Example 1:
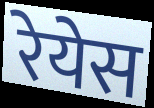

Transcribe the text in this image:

रेयेस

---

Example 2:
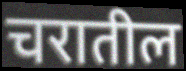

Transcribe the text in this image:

चरातील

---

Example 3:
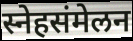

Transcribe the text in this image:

स्नेहसंमेलन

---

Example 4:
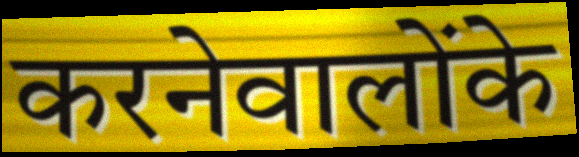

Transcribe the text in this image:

करनेवालोंके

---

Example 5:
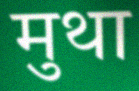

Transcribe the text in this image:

मुथा